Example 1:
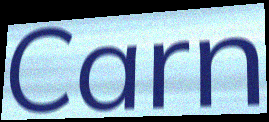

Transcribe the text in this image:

Carn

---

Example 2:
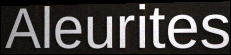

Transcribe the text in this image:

Aleurites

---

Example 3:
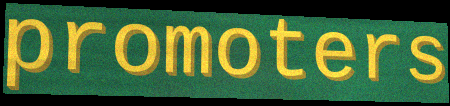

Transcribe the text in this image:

promoters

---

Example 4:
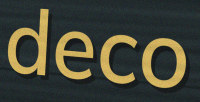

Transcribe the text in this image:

deco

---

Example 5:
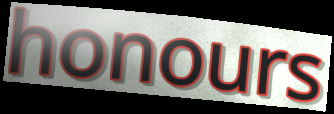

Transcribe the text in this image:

honours